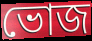
ভোজ